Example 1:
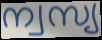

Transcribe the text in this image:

ന്വസ്യ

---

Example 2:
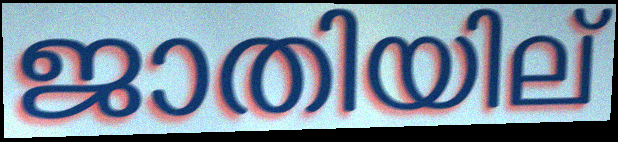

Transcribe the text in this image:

ജാതിയില്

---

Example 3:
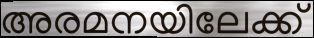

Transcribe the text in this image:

അരമനയിലേക്ക്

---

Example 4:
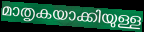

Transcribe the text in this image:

മാതൃകയാക്കിയുള്ള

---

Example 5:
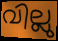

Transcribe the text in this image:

വില്ലു